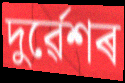
দুৰ্ৱেশৰ